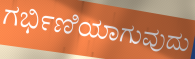
ಗರ್ಭಿಣಿಯಾಗುವುದು